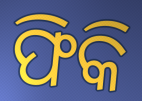
ଫିକି